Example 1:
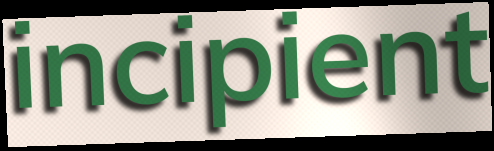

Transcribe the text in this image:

incipient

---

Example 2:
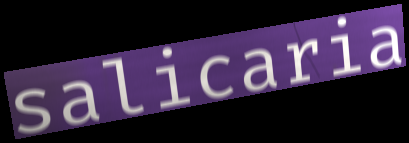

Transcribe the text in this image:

salicaria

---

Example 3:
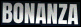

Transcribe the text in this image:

BONANZA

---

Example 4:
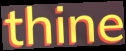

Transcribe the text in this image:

thine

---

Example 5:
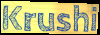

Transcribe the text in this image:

Krushi